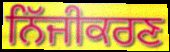
ਨਿੱਜੀਕਰਣ